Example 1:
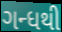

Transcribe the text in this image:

ગન્ધથી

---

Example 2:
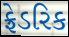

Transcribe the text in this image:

ફ્રેડરિક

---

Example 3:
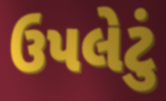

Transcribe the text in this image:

ઉપલેટું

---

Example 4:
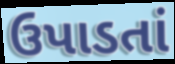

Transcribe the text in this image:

ઉપાડતાં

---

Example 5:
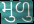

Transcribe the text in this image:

મુળુ